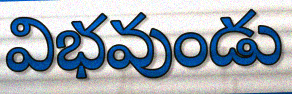
విభవుండు